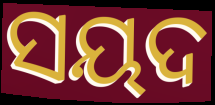
ସୟଦ